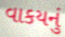
વાકયનું